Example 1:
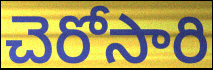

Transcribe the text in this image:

చెరోసారి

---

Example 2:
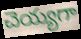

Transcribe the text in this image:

చెయ్యగా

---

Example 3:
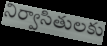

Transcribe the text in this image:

నిర్వాసితులకు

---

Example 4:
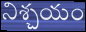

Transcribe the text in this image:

నిశ్చయం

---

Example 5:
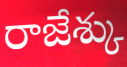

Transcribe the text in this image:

రాజేశ్కు